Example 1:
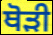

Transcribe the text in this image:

ਥੋੜੀ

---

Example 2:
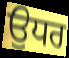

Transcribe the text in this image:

ਉਧਰ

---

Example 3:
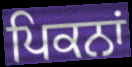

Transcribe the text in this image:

ਪਿਕਨਾਂ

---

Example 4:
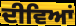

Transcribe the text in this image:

ਦੀਵਿਆਂ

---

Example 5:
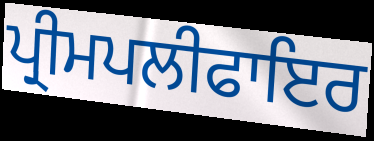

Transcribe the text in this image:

ਪ੍ਰੀਮਪਲੀਫਾਇਰ